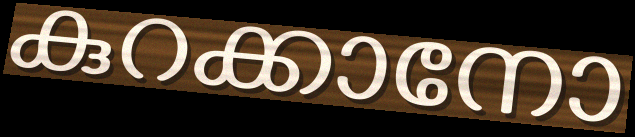
കുറക്കാനോ